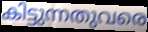
കിട്ടുന്നതുവരെ